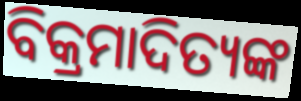
ବିକ୍ରମାଦିତ୍ୟଙ୍କ